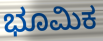
ಭೂಮಿಕ